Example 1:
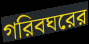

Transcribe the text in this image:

গরিবঘরের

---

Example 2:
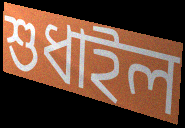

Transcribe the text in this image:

শুধাইল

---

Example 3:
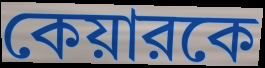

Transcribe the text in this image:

কেয়ারকে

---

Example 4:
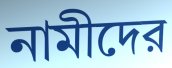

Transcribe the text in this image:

নামীদের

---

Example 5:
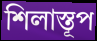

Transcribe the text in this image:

শিলাস্তূপ